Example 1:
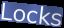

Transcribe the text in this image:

Locks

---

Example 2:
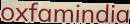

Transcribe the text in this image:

oxfamindia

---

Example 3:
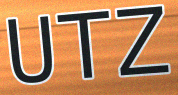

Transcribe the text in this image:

UTZ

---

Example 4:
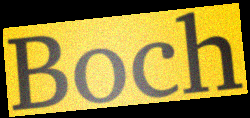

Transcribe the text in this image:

Boch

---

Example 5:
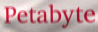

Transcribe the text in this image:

Petabyte